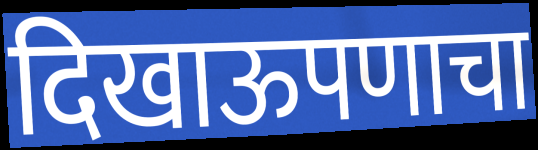
दिखाऊपणाचा